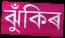
ঝুঁকিৰ